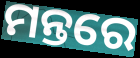
ମନ୍ତରେ